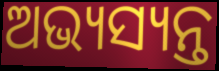
ଅଭ୍ୟସ୍ୟନ୍ତ